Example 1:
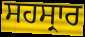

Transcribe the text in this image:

ਸਹਸ੍ਰਾਰ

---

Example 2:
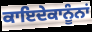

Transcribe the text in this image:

ਕਾਇਦੇਕਾਨੂੰਨਾਂ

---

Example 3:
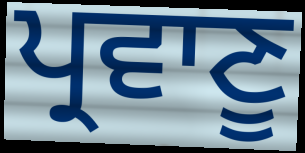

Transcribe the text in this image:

ਪ੍ਰਵਾਣੂ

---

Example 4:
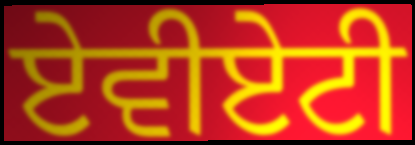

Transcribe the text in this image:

ਏਵੀਏਟੀ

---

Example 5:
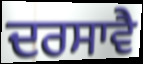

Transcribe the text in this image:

ਦਰਸਾਵੈ